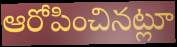
ఆరోపించినట్లూ